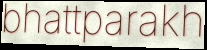
bhattparakh